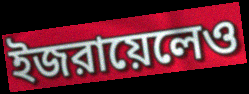
ইজরায়েলেও